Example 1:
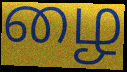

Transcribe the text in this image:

ழை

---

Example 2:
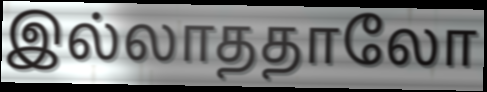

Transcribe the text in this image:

இல்லாததாலோ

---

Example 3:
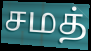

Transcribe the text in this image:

சமத்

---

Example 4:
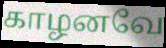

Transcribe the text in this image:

காழனவே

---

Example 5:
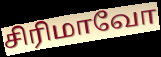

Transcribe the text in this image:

சிரிமாவோ